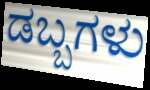
ಡಬ್ಬಗಳು